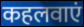
कहलवाएं